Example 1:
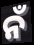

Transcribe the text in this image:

ନଁ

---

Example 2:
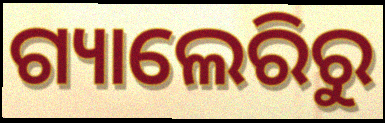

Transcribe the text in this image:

ଗ୍ୟାଲେରିରୁ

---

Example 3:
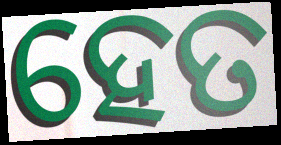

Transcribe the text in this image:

ହେତ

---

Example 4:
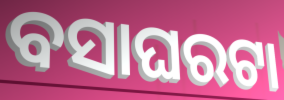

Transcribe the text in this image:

ବସାଘରଟା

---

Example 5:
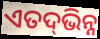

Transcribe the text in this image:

ଏତଦ୍‍ଭିନ୍ନ